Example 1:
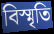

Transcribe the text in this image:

বিস্মৃতি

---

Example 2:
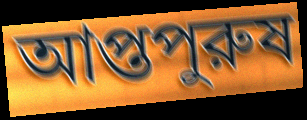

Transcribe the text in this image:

আপ্তপুরুষ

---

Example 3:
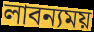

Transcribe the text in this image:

লাবন্যময়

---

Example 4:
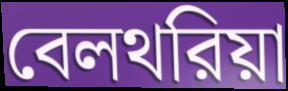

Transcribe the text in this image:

বেলথরিয়া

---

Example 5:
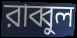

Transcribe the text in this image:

রাব্বুল